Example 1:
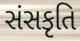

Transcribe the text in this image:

સંસકૃતિ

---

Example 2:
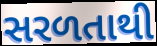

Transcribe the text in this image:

સરળતાથી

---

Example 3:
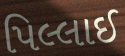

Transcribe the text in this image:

પિલ્લાઈ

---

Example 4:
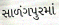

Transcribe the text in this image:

સાળંગપુરમાં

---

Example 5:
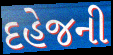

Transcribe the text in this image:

દહેજની